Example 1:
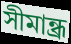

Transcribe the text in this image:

সীমান্ধ্র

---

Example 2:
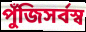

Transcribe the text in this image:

পুঁজিসর্বস্ব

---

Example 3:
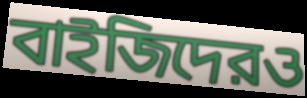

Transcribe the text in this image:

বাইজিদেরও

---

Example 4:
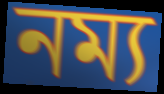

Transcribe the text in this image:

নম্য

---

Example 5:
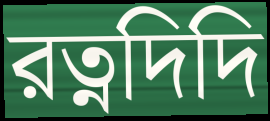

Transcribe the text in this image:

রত্নদিদি